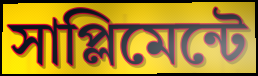
সাপ্লিমেন্টে